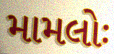
મામલોઃ